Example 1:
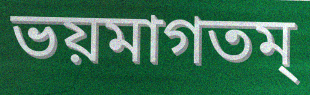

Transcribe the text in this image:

ভয়মাগতম্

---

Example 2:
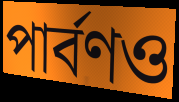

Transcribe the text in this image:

পার্বণও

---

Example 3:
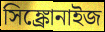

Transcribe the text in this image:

সিঙ্ক্রোনাইজ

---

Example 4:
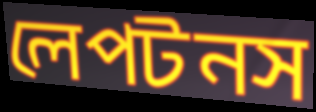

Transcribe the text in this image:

লেপটনস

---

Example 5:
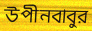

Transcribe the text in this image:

উপীনবাবুর